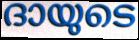
ദായുടെ